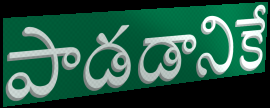
పాడడానికే